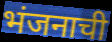
भंजनाची